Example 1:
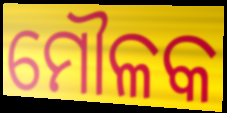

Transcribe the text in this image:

ମୌଳକ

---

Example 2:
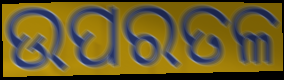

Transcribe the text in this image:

ଉପରତଳ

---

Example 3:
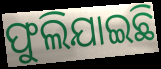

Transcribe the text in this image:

ଫୁଲିଯାଇଛି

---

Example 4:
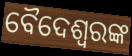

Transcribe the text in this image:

ବୈଦେଶ୍ୱରଙ୍କ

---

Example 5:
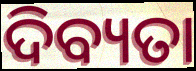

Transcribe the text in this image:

ଦିବ୍ୟତା